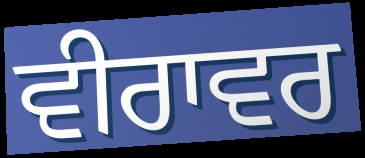
ਵੀਰਾਵਰ